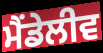
ਮੈਂਡੇਲੀਵ